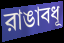
রাঙাবধূ